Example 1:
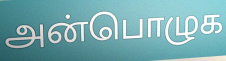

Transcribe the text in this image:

அன்பொழுக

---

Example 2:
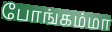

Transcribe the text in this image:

போங்கம்மா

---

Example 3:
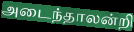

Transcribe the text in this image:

அடைந்தாலன்றி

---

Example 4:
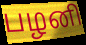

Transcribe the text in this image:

பழனி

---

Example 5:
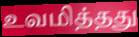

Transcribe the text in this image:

உவமித்தது